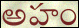
అహం